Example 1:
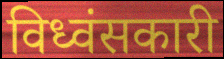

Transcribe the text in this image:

विध्वंसकारी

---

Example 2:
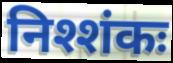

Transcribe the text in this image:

निश्शंकः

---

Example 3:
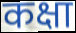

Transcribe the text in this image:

कक्षा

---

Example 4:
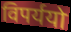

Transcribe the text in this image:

विपर्ययो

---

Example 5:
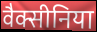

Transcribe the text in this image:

वैक्सीनिया